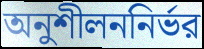
অনুশীলননির্ভর